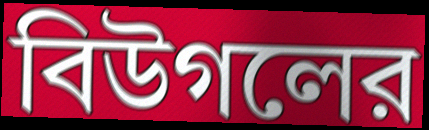
বিউগলের